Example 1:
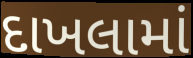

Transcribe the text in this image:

દાખલામાં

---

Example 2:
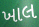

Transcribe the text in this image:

ખાલ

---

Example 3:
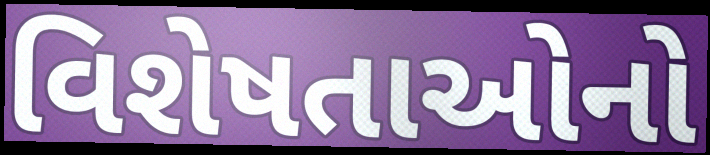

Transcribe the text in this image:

વિશેષતાઓનો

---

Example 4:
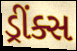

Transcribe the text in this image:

ડ્રીંક્સ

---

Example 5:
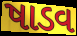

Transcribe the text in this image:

ષાડવ